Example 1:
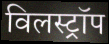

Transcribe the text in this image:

विलस्ट्रॉप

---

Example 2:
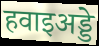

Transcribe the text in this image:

हवाइअड्डे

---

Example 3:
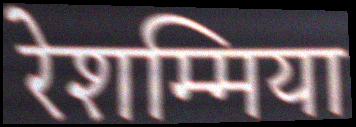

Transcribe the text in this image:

रेशम्मिया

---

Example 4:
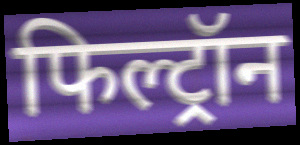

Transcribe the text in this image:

फिल्ट्रॉन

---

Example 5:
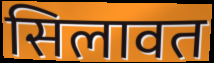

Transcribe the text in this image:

सिलावत